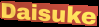
Daisuke